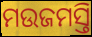
ମଉଜମସ୍ତି